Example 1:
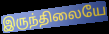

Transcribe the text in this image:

இருந்திலையே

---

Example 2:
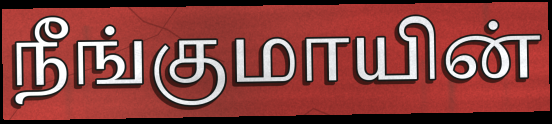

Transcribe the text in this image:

நீங்குமாயின்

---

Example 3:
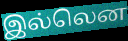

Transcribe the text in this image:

இல்லென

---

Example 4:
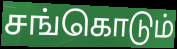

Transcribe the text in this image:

சங்கொடும்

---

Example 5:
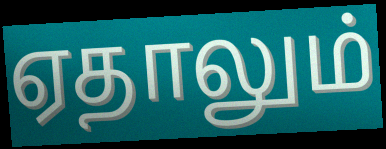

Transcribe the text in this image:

ஏதாலும்